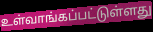
உள்வாங்கப்பட்டுள்ளது